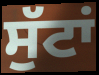
ਸੁੱਟਾਂ